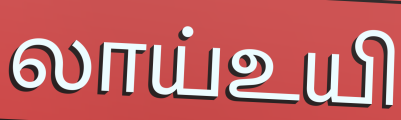
லாய்உயி